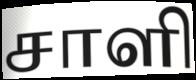
சாளி